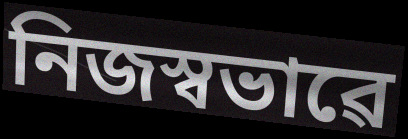
নিজস্বভাৱে